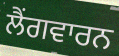
ਲੈਂਗਵਾਰਨ